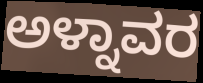
ಅಳ್ನಾವರ